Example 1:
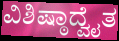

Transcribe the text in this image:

ವಿಶಿಷ್ಠಾದ್ವೈತ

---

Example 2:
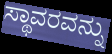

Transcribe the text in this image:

ಸ್ಥಾವರವನ್ನು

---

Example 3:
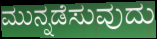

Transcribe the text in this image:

ಮುನ್ನಡೆಸುವುದು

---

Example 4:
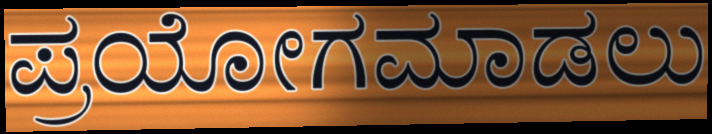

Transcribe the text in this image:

ಪ್ರಯೋಗಮಾಡಲು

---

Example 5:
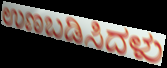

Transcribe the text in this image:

ಉಣಬಡಿಸಿದಳು